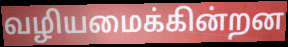
வழியமைக்கின்றன